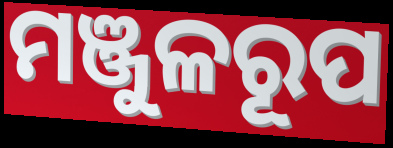
ମଞ୍ଜୁଳରୂପ